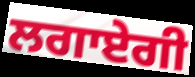
ਲਗਾਏਗੀ